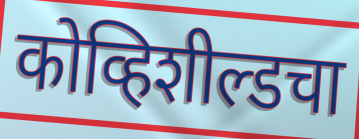
कोव्हिशील्डचा